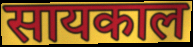
सायकाल